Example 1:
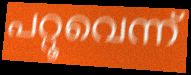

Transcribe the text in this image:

പറ്റൂവെന്ന്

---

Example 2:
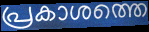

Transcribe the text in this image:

പ്രകാശത്തെ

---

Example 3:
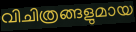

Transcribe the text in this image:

വിചിത്രങ്ങളുമായ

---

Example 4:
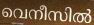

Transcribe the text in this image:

വെനീസിൽ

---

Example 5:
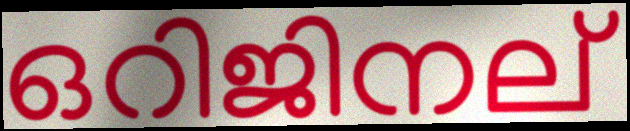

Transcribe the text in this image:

ഒറിജിനല്